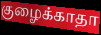
குழைக்காதா